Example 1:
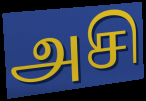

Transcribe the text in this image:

அசி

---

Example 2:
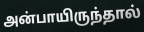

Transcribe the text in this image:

அன்பாயிருந்தால்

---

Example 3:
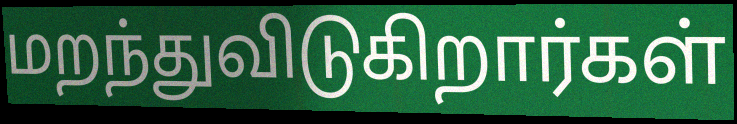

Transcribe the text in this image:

மறந்துவிடுகிறார்கள்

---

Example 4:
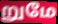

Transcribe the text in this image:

றுமே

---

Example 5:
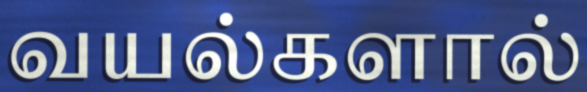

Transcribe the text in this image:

வயல்களால்